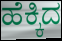
ಹೆಕ್ಕಿದ